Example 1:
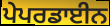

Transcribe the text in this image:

ਪੇਪਰਡਾਈਨ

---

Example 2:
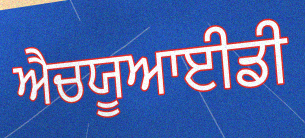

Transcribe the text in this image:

ਐਚਯੂਆਈਡੀ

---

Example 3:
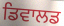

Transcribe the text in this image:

ਡਿਵਾਲਡ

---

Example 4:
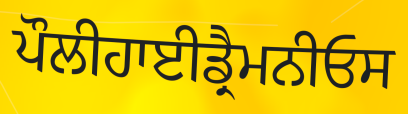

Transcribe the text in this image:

ਪੌਲੀਹਾਈਡ੍ਰੈਮਨੀਓਸ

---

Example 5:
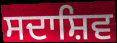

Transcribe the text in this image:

ਸਦਾਸ਼ਿਵ